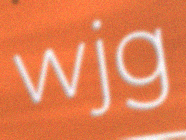
wjg